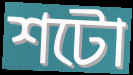
শটো